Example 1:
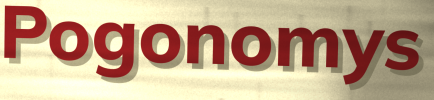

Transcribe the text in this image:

Pogonomys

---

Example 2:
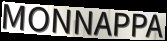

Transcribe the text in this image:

MONNAPPA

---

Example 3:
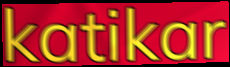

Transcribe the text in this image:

katikar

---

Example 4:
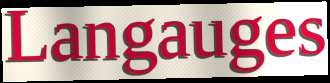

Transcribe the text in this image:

Langauges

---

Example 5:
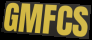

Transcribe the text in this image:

GMFCS